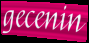
gecenin